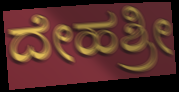
ದೇಹಶ್ರೀ